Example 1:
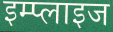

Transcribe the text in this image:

इम्प्लाइज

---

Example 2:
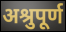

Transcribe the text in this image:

अश्रुपूर्ण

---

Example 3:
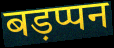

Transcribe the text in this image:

बड़प्पन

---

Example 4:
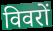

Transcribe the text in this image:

विवरों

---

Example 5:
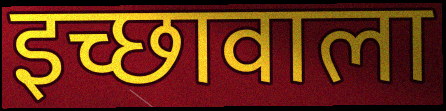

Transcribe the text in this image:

इच्छावाला